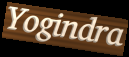
Yogindra